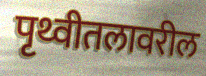
पृथ्वीतलावरील